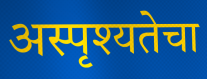
अस्पृश्यतेचा